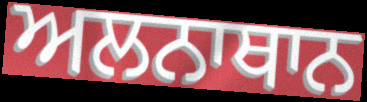
ਅਲਨਾਥਾਨ